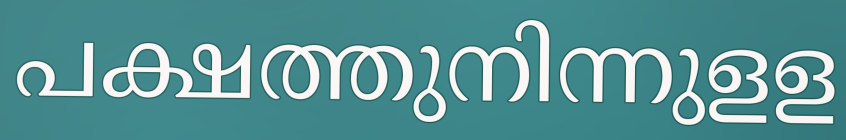
പക്ഷത്തുനിന്നുളള